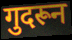
गुदरून